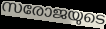
സരോജയുടെ